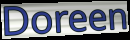
Doreen